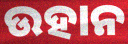
ଉହାନ